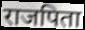
राजपिता